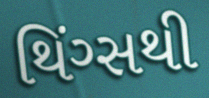
થિંગ્સથી